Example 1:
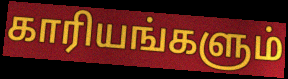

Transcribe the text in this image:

காரியங்களும்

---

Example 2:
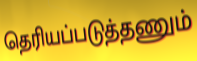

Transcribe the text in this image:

தெரியப்படுத்தணும்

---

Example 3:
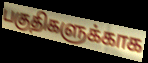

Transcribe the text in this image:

பகுதிகளுக்காக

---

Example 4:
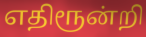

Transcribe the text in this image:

எதிரூன்றி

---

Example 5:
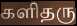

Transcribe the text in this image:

களிதரு